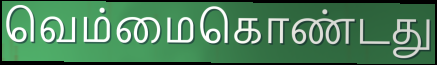
வெம்மைகொண்டது